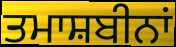
ਤਮਾਸ਼ਬੀਨਾਂ